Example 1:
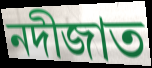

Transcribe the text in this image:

নদীজাত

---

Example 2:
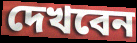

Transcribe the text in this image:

দেখবেন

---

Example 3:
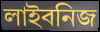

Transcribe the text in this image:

লাইবনিজ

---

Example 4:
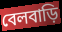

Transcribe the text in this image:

বেলবাড়ি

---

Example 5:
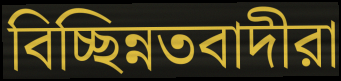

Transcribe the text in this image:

বিচ্ছিন্নতবাদীরা